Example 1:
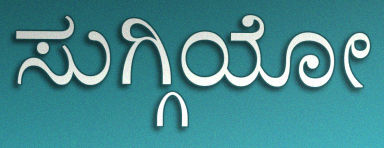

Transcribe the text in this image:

ಸುಗ್ಗಿಯೋ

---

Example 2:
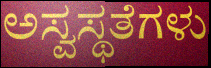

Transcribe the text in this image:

ಅಸ್ವಸ್ಥತೆಗಳು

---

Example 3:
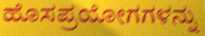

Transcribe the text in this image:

ಹೊಸಪ್ರಯೋಗಗಳನ್ನು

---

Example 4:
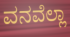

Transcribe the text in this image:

ವನವೆಲ್ಲಾ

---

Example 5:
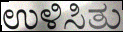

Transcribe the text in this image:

ಉಳಿಸಿತು